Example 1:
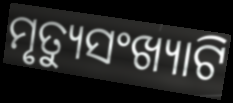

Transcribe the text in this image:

ମୃତ୍ୟୁସଂଖ୍ୟାଟି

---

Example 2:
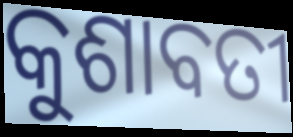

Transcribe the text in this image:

କୁଶାବତୀ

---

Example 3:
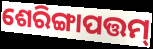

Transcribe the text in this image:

ଶେରିଙ୍ଗାପତ୍ତମ୍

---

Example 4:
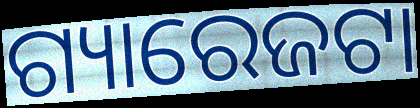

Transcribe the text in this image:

ଗ୍ୟାରେଜଟା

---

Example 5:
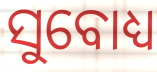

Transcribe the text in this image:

ସୁବୋଧ୍ୟ